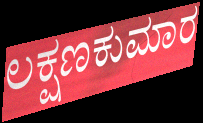
ಲಕ್ಷಣಕುಮಾರ